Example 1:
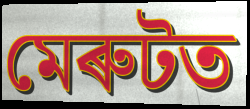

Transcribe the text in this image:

মেৰুটত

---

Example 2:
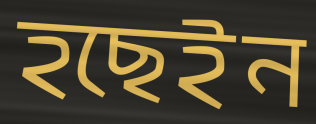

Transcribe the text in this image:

হছেইন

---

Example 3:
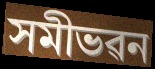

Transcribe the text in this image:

সমীভৱন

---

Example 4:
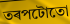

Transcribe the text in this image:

তৰপটোতো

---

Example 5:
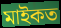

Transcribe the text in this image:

মাইকত